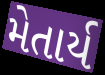
મેતાર્ય